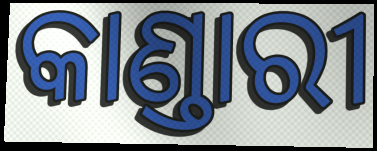
କାଣ୍ଡାରୀ